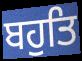
ਬਹੁਤਿ